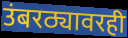
उंबरठ्यावरही